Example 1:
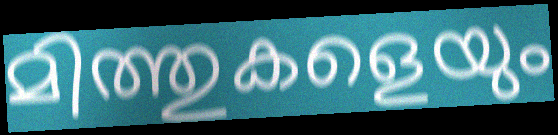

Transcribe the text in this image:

മിത്തുകളെയും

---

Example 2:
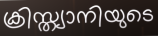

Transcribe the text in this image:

ക്രിസ്ത്യാനിയുടെ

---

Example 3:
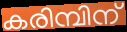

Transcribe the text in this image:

കരിമ്പിന്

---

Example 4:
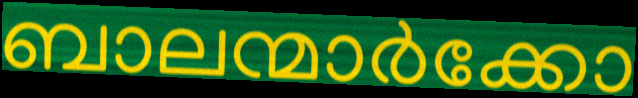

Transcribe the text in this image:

ബാലന്മാർക്കോ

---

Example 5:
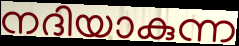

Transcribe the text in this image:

നദിയാകുന്ന